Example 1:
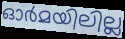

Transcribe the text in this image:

ഓർമയിലില്ല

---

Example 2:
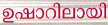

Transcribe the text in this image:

ഉഷാറിലായി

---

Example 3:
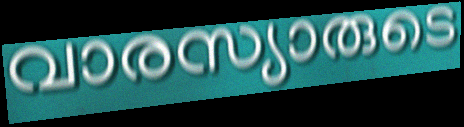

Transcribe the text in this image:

വാരസ്യാരുടെ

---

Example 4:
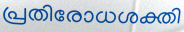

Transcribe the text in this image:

പ്രതിരോധശക്തി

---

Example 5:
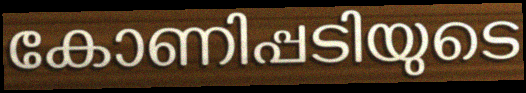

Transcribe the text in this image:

കോണിപ്പടിയുടെ